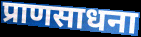
प्राणसाधना